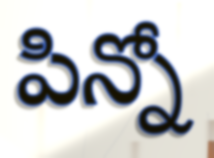
పిన్నో